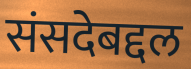
संसदेबद्दल